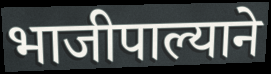
भाजीपाल्याने